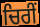
ਚਿਰੀਂ